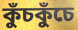
কুঁচকুঁচে